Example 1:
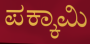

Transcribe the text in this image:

ಪಕ್ಕಾಮಿ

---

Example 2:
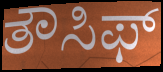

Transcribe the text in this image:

ತೌಸಿಫ್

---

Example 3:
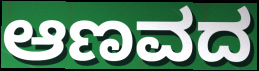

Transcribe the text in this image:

ಆಣವದ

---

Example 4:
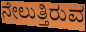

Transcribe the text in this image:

ನೇಲುತ್ತಿರುವ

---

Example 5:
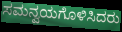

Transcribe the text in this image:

ಸಮನ್ವಯಗೊಳಿಸಿದರು